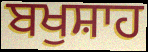
ਬਖੁਸ਼ਾਹ